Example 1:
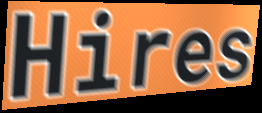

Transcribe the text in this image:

Hires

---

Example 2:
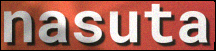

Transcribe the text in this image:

nasuta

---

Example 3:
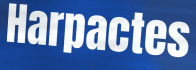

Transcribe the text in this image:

Harpactes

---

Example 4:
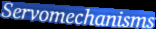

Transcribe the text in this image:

Servomechanisms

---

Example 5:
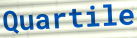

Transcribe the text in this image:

Quartile